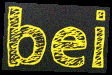
bei